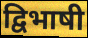
द्विभाषी